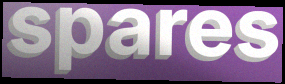
spares